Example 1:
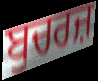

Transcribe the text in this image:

ਬੁਚਰਜ਼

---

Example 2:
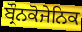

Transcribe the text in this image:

ਬ੍ਰੌਨਕੋਜੇਨਿਕ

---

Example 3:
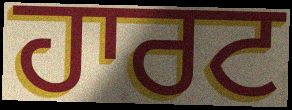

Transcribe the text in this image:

ਹਾਰਟ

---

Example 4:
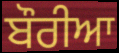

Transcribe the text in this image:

ਬੌਰੀਆ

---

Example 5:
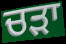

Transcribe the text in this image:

ਚੜਾ